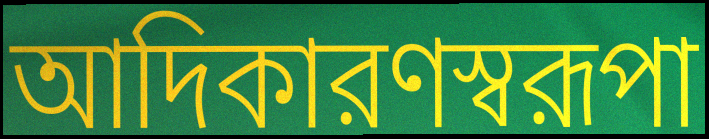
আদিকারণস্বরূপা